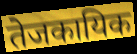
तेजकायिक